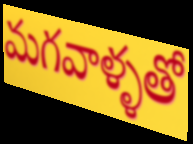
మగవాళ్ళతో